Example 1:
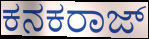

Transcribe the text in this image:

ಕನಕರಾಜ್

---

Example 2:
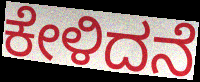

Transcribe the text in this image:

ಕೇಳಿದನೆ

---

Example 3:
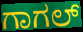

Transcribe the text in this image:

ಗಾಗಲ್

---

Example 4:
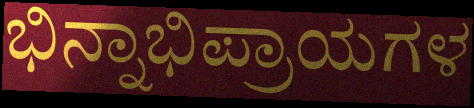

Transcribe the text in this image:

ಭಿನ್ನಾಭಿಪ್ರಾಯಗಳ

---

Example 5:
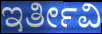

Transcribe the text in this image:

ಇರ್ತೀವಿ